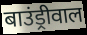
बाउंड्रीवाल